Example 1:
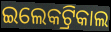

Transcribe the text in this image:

ଇଲେକଟ୍ରିକାଲ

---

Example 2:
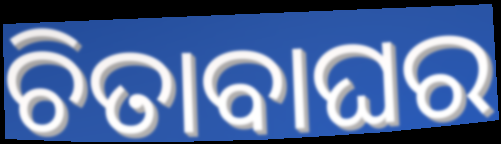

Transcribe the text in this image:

ଚିତାବାଘର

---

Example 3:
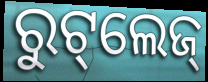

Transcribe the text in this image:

ରୁଟ୍‌ଲେଜ୍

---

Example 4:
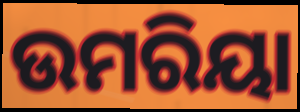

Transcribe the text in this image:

ଉମରିୟା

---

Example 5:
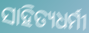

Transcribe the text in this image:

ସାହିତ୍ୟଧର୍ମୀ